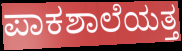
ಪಾಕಶಾಲೆಯತ್ತ